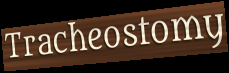
Tracheostomy